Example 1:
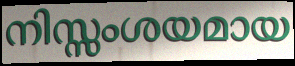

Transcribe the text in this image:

നിസ്സംശയമായ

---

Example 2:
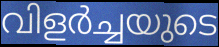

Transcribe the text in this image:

വിളർച്ചയുടെ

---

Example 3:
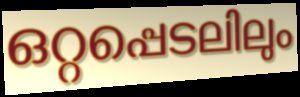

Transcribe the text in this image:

ഒറ്റപ്പെടലിലും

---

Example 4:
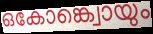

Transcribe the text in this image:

ഒകോങ്ക്വൊയും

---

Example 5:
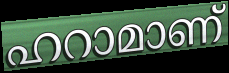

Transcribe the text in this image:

ഹറാമാണ്